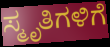
ಸ್ಮೃತಿಗಳಿಗೆ